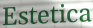
Estetica